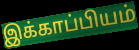
இக்காப்பியம்